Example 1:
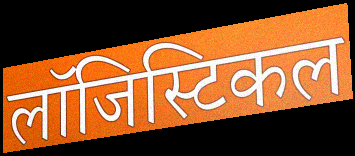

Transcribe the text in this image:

लॉजिस्टिकल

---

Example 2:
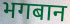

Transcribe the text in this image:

भगबान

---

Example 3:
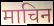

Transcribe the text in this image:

माचिन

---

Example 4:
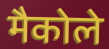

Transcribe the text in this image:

मैकोले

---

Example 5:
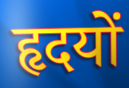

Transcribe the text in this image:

हृदयों